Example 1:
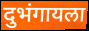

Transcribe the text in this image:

दुभंगायला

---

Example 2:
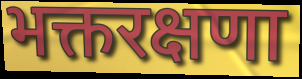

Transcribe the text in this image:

भक्तरक्षणा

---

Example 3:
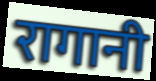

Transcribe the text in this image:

रागानी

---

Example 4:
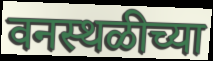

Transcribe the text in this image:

वनस्थळीच्या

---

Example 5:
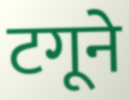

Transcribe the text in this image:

टगूने